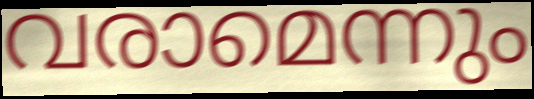
വരാമെന്നും